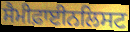
ਸੈਮੀਫ਼ਾਈਨਲਿਸਟ